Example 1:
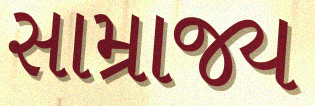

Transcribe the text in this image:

સામ્રાજ્ય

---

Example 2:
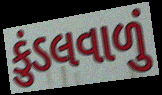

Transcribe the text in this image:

કુંડલવાળું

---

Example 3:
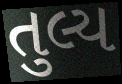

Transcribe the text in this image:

તુલ્ય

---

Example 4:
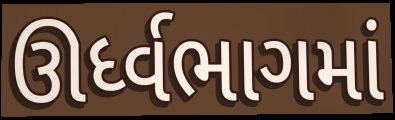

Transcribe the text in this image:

ઊર્ધ્વભાગમાં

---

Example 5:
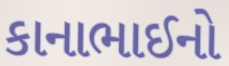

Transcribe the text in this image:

કાનાભાઈનો